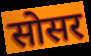
सोसर